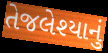
તેજલેશ્યાનું